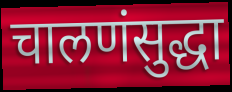
चालणंसुद्धा